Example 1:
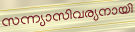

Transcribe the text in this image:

സന്ന്യാസിവര്യനായി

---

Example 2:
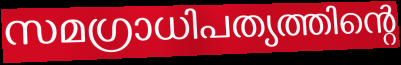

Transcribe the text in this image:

സമഗ്രാധിപത്യത്തിന്റെ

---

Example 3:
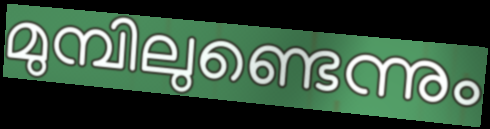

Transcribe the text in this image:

മുമ്പിലുണ്ടെന്നും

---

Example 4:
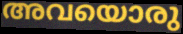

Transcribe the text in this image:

അവയൊരു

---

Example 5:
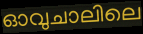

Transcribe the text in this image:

ഓവുചാലിലെ